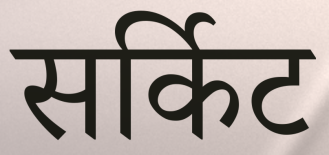
सर्किट